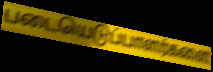
படையெடுப்பாளர்களை